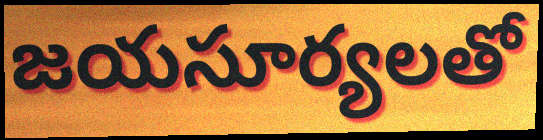
జయసూర్యలతో